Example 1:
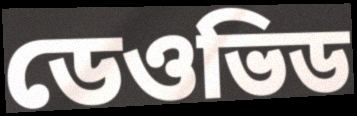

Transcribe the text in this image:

ডেওভিড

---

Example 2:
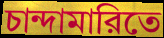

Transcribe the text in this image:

চান্দামারিতে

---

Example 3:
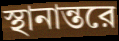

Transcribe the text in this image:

স্থানান্তরে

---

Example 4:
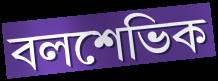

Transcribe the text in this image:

বলশেভিক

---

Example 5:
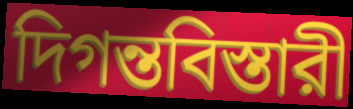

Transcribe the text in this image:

দিগন্তবিস্তারী